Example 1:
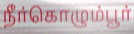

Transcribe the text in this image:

நீர்கொழும்பூர்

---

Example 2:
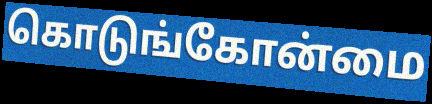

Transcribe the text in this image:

கொடுங்கோன்மை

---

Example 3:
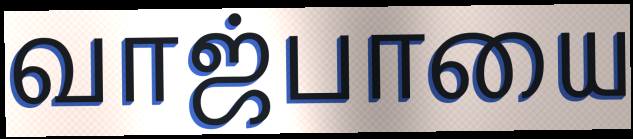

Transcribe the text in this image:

வாஜ்பாயை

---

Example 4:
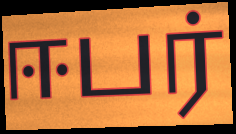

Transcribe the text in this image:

ஈபர்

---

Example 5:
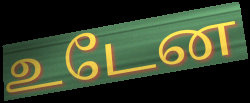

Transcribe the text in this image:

உடேன